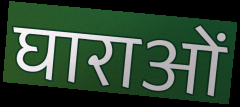
घाराओं